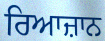
ਰਿਆਜ਼ਾਨ